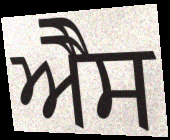
ਐੈਸ